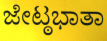
ಜೇಟ್ಠಭಾತಾ